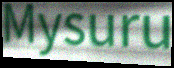
Mysuru